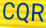
CQR